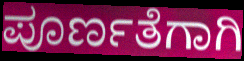
ಪೂರ್ಣತೆಗಾಗಿ